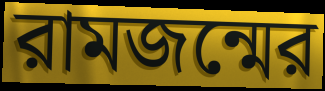
রামজন্মের